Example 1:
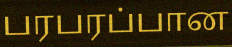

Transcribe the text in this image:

பரபரப்பான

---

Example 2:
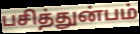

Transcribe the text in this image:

பசித்துன்பம்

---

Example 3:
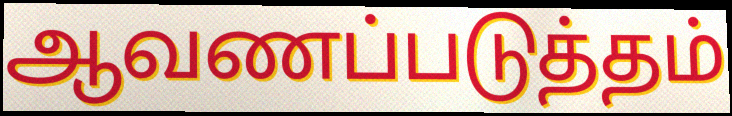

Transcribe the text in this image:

ஆவணப்படுத்தம்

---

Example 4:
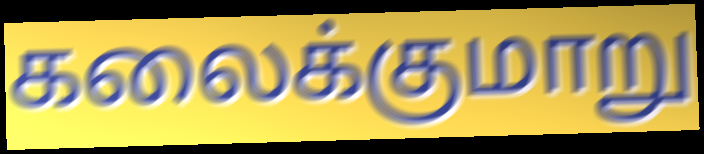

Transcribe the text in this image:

கலைக்குமாறு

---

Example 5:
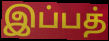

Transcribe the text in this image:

இப்பத்